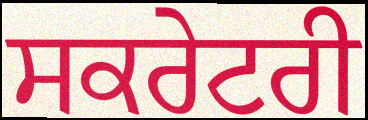
ਸਕਰੇਟਰੀ